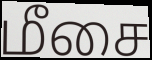
மீசை